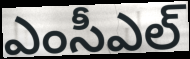
ఎంసీఎల్